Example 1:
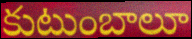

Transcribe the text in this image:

కుటుంబాలూ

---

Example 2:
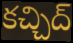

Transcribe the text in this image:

కచ్చిద్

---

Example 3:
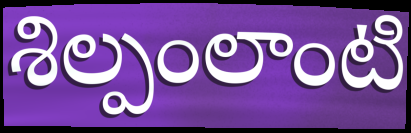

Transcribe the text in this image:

శిల్పంలాంటి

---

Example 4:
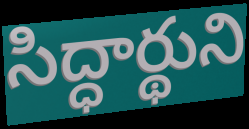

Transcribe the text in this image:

సిద్ధార్థుని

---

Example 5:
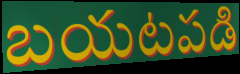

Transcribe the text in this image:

బయటపడి